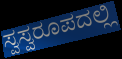
ಸ್ವಸ್ವರೂಪದಲ್ಲಿ